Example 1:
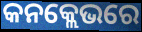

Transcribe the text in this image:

କନକ୍ଲେଭରେ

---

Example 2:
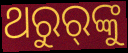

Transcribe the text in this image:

ଥରୁର୍‌ଙ୍କୁ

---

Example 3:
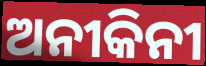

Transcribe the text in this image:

ଅନୀକିନୀ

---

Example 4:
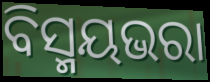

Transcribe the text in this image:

ବିସ୍ମୟଭରା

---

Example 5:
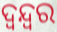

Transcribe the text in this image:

ଦ୍ଵନ୍ଦ୍ୱର